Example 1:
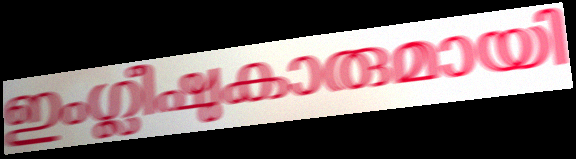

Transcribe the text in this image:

ഇംഗ്ലീഷുകാരുമായി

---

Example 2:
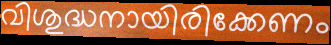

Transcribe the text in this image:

വിശുദ്ധനായിരിക്കേണം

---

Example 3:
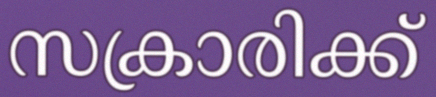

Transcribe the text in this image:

സക്രാരിക്ക്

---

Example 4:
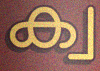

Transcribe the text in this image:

ക്വ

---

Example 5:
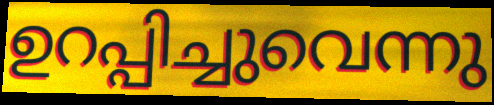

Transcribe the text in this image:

ഉറപ്പിച്ചുവെന്നു